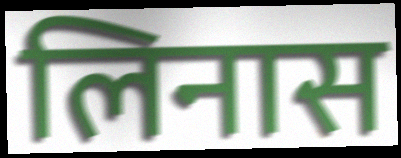
लिनास